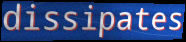
dissipates